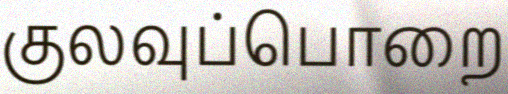
குலவுப்பொறை